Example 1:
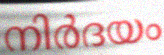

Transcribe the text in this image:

നിർദയം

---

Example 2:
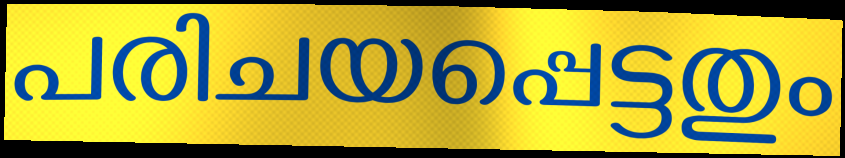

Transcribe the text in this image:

പരിചയപ്പെട്ടതും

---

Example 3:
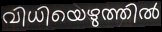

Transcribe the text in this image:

വിധിയെഴുത്തിൽ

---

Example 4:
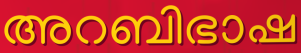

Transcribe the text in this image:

അറബിഭാഷ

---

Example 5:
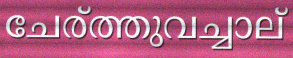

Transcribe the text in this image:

ചേര്ത്തുവച്ചാല്